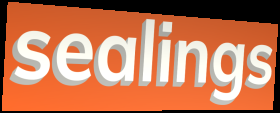
sealings